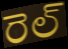
రెల్